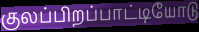
குலப்பிறப்பாட்டியோடு